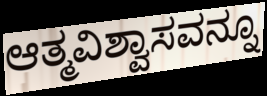
ಆತ್ಮವಿಶ್ವಾಸವನ್ನೂ